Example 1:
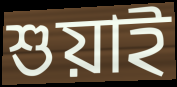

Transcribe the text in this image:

শুয়াই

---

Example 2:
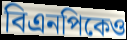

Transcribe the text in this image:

বিএনপিকেও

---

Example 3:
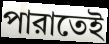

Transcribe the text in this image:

পারাতেই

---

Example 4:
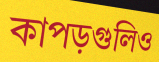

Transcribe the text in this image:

কাপড়গুলিও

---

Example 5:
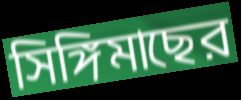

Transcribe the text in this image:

সিঙ্গিমাছের